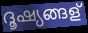
ദൂഷ്യങ്ങള്